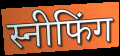
स्नीफिंग